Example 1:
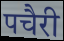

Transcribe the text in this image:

पचैरी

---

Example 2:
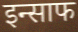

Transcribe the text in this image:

इन्साफ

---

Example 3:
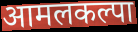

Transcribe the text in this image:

आमलकल्पा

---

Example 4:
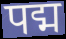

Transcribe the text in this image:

पद्म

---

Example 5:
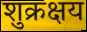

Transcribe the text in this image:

शुक्रक्षय